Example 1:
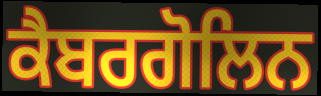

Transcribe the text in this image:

ਕੈਬਰਗੋਲਿਨ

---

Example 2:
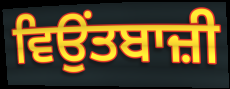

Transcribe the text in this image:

ਵਿਉਂਤਬਾਜ਼ੀ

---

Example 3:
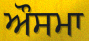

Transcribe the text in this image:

ਔਸਮਾ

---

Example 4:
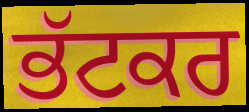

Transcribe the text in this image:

ਭੱਟਕਰ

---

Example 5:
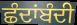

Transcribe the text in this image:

ਛੰਦਾਂਬੰਦੀ